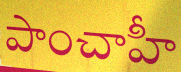
పాంచాహీ